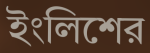
ইংলিশের